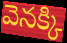
వెనక్కి